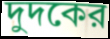
দুদকের